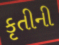
કૃતીની